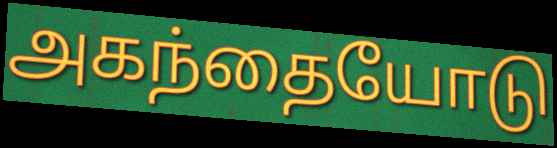
அகந்தையோடு